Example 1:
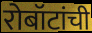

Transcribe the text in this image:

रोबॉटांची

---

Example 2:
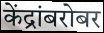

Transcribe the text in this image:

केंद्रांबरोबर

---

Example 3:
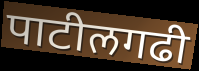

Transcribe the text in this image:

पाटीलगढी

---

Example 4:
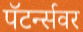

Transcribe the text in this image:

पॅटर्न्सवर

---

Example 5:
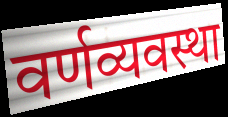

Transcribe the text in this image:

वर्णव्यवस्था